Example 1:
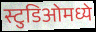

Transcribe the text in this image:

स्टुडिओमध्ये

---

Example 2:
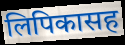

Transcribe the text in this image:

लिपिकासह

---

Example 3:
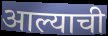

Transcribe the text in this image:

आल्याची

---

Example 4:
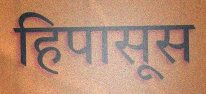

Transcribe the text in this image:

हिपासूस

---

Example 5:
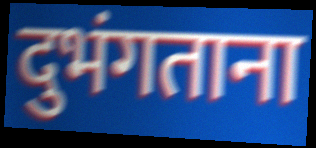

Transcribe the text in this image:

दुभंगताना